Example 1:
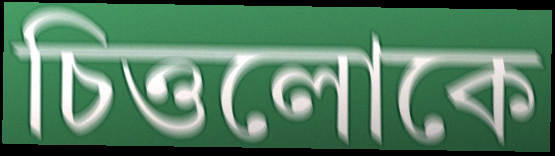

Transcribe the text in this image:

চিত্তলোকে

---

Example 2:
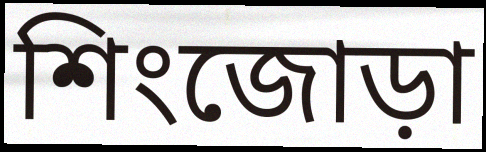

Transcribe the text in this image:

শিংজোড়া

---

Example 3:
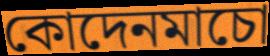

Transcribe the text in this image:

কোদেনমাচো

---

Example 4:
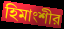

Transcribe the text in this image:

হিমাংশীর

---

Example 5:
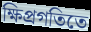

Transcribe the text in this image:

ক্ষিপ্রগতিতে